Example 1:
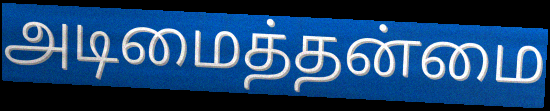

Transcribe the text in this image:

அடிமைத்தன்மை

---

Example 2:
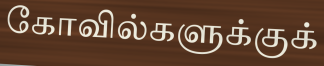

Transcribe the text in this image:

கோவில்களுக்குக்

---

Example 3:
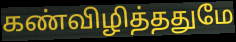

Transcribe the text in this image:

கண்விழித்ததுமே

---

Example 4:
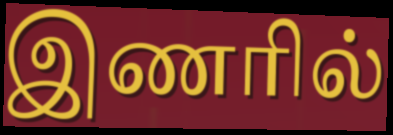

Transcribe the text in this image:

இணரில்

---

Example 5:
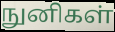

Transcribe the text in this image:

நுனிகள்